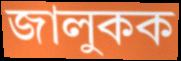
জালুকক